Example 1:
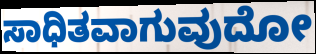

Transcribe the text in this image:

ಸಾಧಿತವಾಗುವುದೋ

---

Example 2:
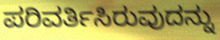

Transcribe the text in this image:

ಪರಿವರ್ತಿಸಿರುವುದನ್ನು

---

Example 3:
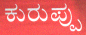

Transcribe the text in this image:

ಕುರುಪ್ಪು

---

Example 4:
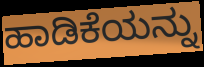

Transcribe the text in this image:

ಹಾಡಿಕೆಯನ್ನು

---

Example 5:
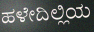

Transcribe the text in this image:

ಹಳೇದಿಲ್ಲಿಯ